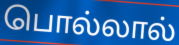
பொல்லால்